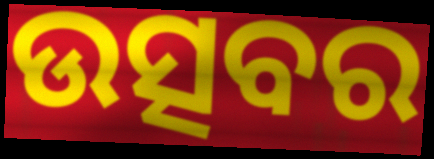
ଉତ୍ସବର